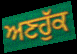
ਅਣਹੁੱਕ